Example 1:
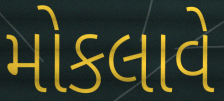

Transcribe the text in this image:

મોકલાવે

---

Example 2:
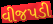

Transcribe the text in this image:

વીજપડી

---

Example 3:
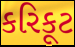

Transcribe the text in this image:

કરિકૂટ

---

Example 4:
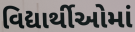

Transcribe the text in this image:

વિદ્યાર્થીઓમાં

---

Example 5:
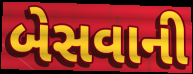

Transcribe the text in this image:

બેસવાની